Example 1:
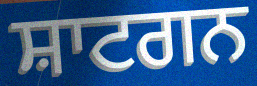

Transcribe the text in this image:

ਸ਼ਾਟਗਨ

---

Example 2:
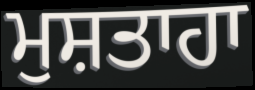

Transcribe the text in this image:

ਮੁਸ਼ਤਾਹਾ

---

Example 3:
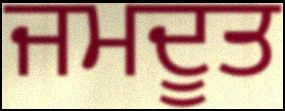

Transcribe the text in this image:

ਜਮਦੂਤ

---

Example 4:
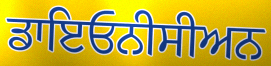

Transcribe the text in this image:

ਡਾਇਓਨੀਸੀਅਨ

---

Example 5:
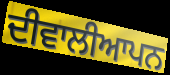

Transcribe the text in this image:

ਦੀਵਾਲੀਆਪਨ